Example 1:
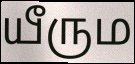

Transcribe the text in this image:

யீரும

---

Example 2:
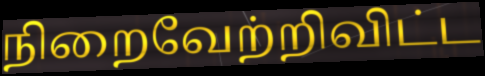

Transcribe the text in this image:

நிறைவேற்றிவிட்ட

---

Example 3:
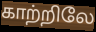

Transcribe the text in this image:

காற்றிலே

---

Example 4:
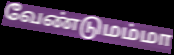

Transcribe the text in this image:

வேண்டுமம்மா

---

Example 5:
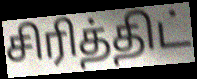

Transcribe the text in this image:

சிரித்திட்